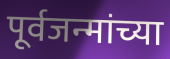
पूर्वजन्मांच्या